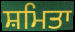
ਸ਼ਮਿਤਾ